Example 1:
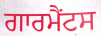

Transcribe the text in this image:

ਗਾਰਮੈਂਟਸ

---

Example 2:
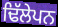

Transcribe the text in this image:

ਢਿੱਲੇਪਨ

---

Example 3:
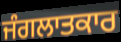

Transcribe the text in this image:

ਜੰਗਲਾਤਕਾਰ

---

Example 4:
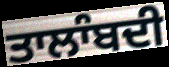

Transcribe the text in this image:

ਤਾਲਾੰਬਦੀ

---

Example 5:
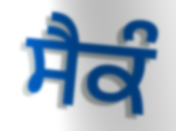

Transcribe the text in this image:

ਸੈਕੰ